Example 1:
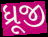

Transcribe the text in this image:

ધ્રૂજી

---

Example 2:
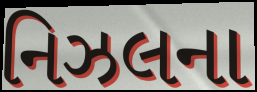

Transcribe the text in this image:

નિઝલના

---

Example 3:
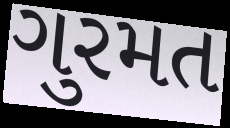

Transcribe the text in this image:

ગુરમત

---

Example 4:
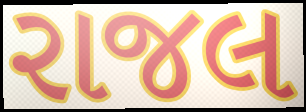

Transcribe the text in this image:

રાજલ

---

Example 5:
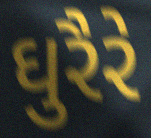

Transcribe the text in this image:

ઘુરૈરે